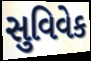
સુવિવેક